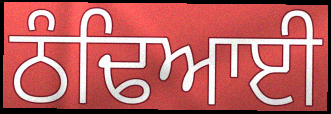
ਠੰਢਿਆਈ